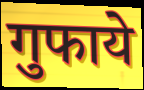
गुफाये